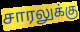
சாரலுக்கு